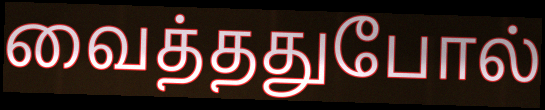
வைத்ததுபோல்